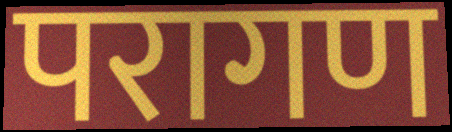
परागण